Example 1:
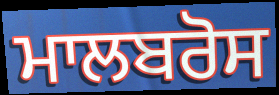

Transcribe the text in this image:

ਮਾਲਬਰੋਸ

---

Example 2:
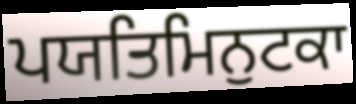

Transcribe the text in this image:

ਪਯਤਿਮਿਨੁਟਕਾ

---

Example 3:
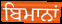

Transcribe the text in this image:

ਬਿਮਾਨਾਂ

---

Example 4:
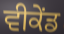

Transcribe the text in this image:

ਵੀਕੇਂਡ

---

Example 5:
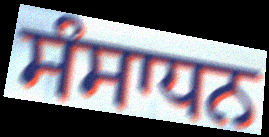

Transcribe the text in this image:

ਸੰਸਾਧਨ